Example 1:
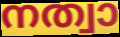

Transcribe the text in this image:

നത്വാ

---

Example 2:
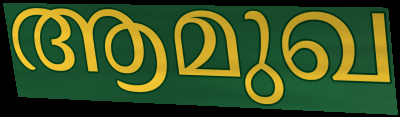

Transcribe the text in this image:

ആമുഖ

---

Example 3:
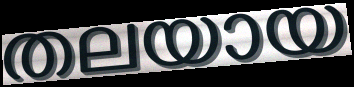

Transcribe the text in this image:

തലയായ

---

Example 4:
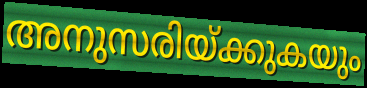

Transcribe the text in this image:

അനുസരിയ്ക്കുകയും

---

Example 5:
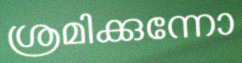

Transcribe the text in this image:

ശ്രമിക്കുന്നോ